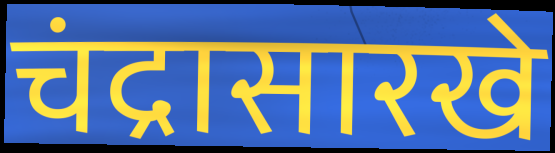
चंद्रासारखे